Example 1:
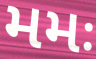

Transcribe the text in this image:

મમઃ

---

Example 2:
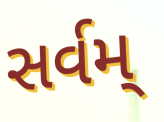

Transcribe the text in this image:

સર્વમ્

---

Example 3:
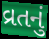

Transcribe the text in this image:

વ્રતનું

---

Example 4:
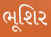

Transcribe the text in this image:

ભૂશિર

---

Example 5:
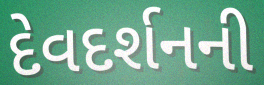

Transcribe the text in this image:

દેવદર્શનની